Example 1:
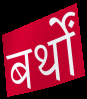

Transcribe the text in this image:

बर्थों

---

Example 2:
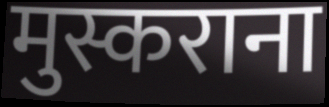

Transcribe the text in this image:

मुस्कराना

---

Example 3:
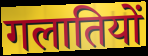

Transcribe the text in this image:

गलातियों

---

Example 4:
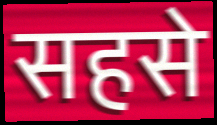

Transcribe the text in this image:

सहसे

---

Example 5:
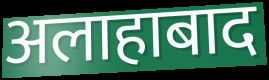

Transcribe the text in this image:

अलाहाबाद